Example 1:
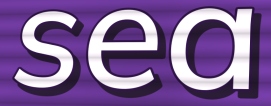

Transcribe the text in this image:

sea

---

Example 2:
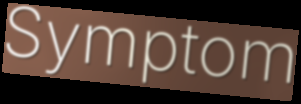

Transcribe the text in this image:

Symptom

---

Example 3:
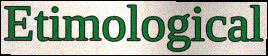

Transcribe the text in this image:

Etimological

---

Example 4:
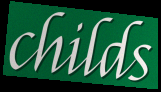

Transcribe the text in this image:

childs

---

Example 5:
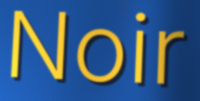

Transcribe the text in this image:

Noir